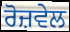
ਰੋਜ਼ਵੇਲ